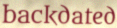
backdated